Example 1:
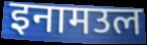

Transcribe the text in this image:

इनामउल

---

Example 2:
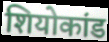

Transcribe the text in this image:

शियोकांड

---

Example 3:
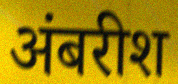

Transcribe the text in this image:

अंबरीश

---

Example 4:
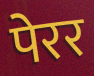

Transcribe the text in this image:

पेरर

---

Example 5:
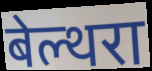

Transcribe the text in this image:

बेल्थरा